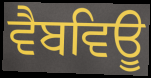
ਵੈਬਵਿਊ